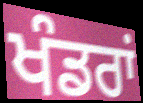
ਖੰਡਰਾਂ